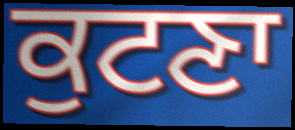
ਕੁਟਣਾ